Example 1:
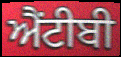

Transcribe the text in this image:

ਐਂਟੀਬੀ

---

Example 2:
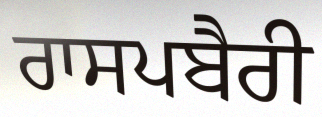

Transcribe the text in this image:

ਰਾਸਪਬੈਰੀ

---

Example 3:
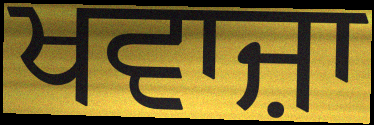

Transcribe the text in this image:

ਖਵਾਜ਼ਾ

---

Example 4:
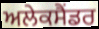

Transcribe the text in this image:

ਅਲੇਕਸੈਂਡਰ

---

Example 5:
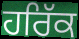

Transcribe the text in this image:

ਹਰਿੱਕ